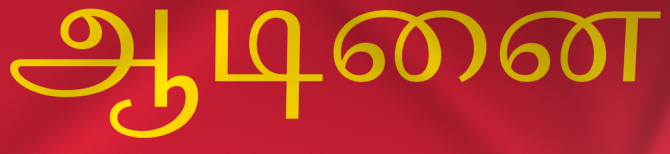
ஆடினை